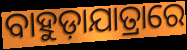
ବାହୁଡ଼ାଯାତ୍ରାରେ